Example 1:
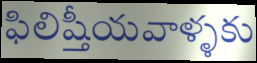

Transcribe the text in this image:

ఫిలిష్తీయవాళ్ళకు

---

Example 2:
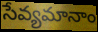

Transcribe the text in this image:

సేవ్యమానాం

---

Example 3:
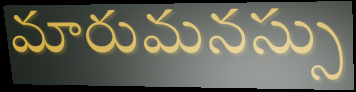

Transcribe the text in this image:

మారుమనస్సు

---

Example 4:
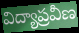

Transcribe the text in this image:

విద్యాప్రవీణ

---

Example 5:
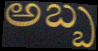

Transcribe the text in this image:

అబ్బ